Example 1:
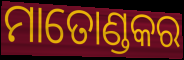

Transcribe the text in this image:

ମାତୋଣ୍ଡକର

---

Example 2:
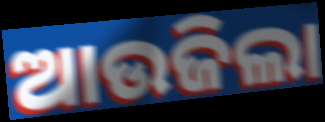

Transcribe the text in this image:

ଆଉଜିଲା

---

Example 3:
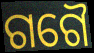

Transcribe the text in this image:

ଗଗୈ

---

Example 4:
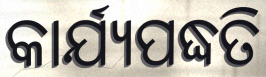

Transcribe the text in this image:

କାର୍ଯ୍ୟପଦ୍ଧତି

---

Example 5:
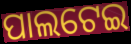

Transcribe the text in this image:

ପାଲଟେଇ